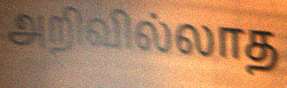
அறிவில்லாத